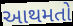
આથમતો